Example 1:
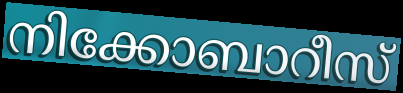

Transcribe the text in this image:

നിക്കോബാറീസ്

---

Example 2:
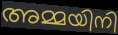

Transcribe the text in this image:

അമ്മയിനി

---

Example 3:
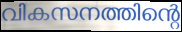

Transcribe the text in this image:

വികസനത്തിന്റെ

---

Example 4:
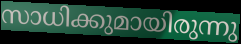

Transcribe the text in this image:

സാധിക്കുമായിരുന്നു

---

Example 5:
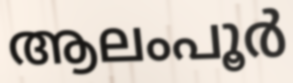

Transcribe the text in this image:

ആലംപൂർ